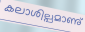
കലാശില്പമാണു്